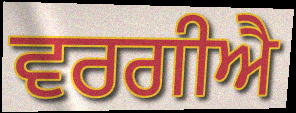
ਵਰਗੀਐ